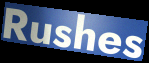
Rushes